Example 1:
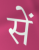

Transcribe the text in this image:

सें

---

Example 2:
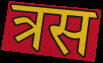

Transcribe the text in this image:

त्रस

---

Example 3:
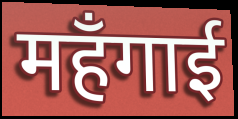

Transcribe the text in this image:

महँगाई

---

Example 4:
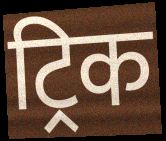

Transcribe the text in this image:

ट्रिक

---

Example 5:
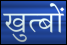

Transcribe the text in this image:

खुत्बों